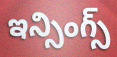
ఇన్సింగ్స్